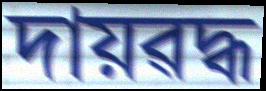
দায়ৱদ্ধ